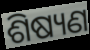
ଶିଷ୍ୟଣ